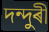
দন্দুৰী